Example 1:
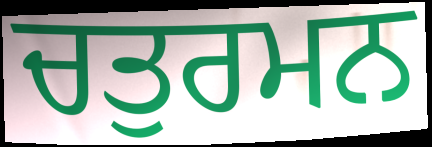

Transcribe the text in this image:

ਚਤੁਰਮਨ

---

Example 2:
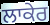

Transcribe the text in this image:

ਲਾਕੇਰ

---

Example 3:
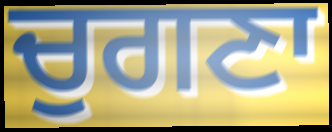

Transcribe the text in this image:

ਚੁਗਣਾ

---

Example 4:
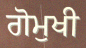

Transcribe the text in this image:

ਗੋਮੁਖੀ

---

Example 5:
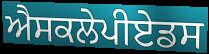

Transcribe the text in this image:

ਐਸਕਲੇਪੀਏਡਸ